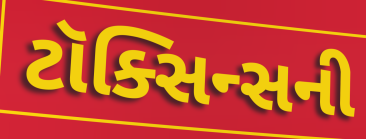
ટૉક્સિન્સની